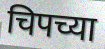
चिपच्या